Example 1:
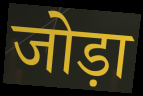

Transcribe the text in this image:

जोड़ा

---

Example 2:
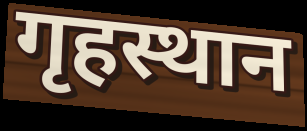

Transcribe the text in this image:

गृहस्थान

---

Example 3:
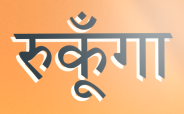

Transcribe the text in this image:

रुकूँगा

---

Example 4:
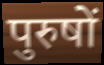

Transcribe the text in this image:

पुरुषों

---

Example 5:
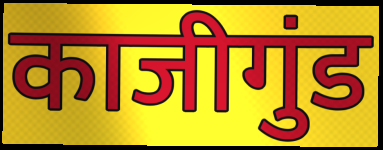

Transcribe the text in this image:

काजीगुंड